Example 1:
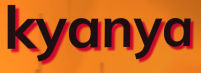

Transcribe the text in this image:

kyanya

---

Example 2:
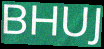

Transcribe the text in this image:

BHUJ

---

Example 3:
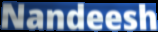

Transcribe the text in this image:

Nandeesh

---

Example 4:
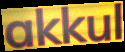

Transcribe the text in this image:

akkul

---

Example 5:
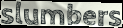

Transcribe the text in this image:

slumbers